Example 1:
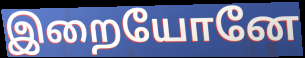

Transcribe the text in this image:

இறையோனே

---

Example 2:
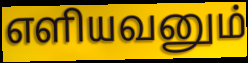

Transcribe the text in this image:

எளியவனும்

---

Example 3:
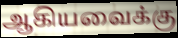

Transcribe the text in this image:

ஆகியவைக்கு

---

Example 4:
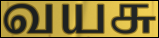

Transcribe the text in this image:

வயசு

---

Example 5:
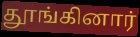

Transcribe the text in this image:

தூங்கினார்